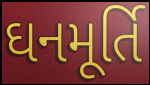
ઘનમૂર્તિ